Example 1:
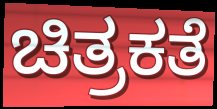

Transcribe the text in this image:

ಚಿತ್ರಕತೆ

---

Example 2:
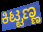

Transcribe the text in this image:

ಕಿಟ್ಟಣ್ಣ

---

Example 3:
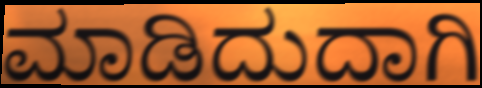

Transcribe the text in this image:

ಮಾಡಿದುದಾಗಿ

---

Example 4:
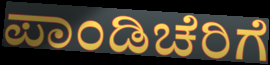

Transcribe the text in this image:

ಪಾಂಡಿಚೆರಿಗೆ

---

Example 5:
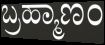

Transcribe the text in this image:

ಬ್ರಹ್ಮಾಣಂ